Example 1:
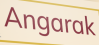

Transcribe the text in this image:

Angarak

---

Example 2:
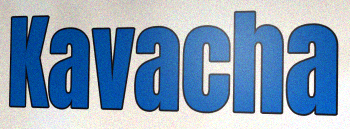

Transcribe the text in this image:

Kavacha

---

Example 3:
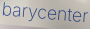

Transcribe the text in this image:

barycenter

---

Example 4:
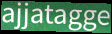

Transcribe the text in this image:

ajjatagge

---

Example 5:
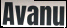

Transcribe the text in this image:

Avanu